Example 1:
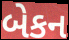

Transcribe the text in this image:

બેકન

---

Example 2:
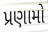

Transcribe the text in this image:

પ્રણામો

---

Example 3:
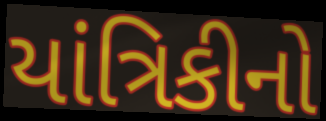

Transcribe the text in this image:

યાંત્રિકીનો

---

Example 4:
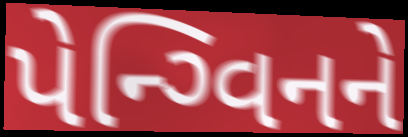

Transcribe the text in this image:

પેન્ગ્વિનને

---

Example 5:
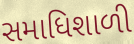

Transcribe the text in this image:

સમાધિશાળી